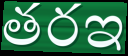
తరఇ